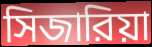
সিজারিয়া